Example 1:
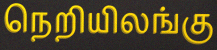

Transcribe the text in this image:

நெறியிலங்கு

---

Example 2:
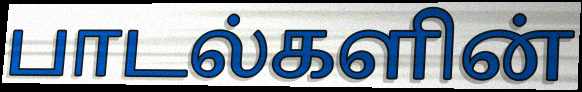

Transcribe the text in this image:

பாடல்களின்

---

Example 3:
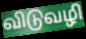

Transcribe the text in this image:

விடுவழி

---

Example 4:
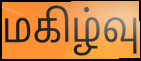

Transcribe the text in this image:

மகிழ்வு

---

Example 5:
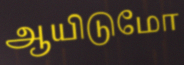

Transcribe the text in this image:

ஆயிடுமோ